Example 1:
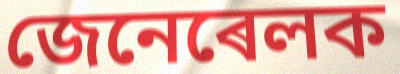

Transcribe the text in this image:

জেনেৰেলক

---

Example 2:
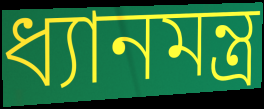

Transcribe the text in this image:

ধ্যানমন্ত্ৰ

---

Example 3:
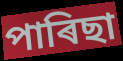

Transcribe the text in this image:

পাৰিছা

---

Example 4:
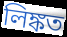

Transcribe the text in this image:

লিঙ্কত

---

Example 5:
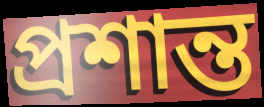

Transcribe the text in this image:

প্ৰশান্ত